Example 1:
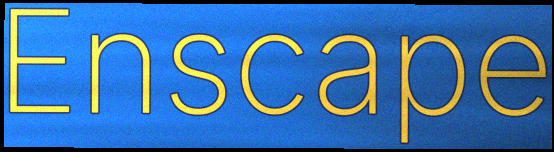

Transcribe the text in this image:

Enscape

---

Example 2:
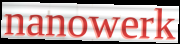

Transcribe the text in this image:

nanowerk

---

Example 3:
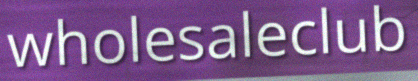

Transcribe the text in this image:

wholesaleclub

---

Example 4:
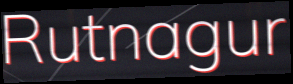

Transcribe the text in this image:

Rutnagur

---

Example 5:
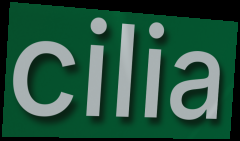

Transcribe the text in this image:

cilia